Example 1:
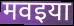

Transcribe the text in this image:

मवइया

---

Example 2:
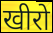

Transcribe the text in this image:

खीरो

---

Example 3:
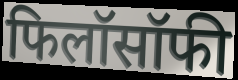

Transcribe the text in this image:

फिलॉसॉफी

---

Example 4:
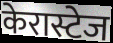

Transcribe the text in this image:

केरास्टेज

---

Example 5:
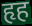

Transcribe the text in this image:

हृह